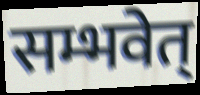
सम्भवेत्